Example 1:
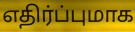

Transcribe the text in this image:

எதிர்ப்புமாக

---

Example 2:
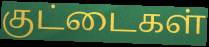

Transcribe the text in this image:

குட்டைகள்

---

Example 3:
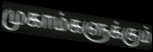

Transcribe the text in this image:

முகாம்களுக்கும்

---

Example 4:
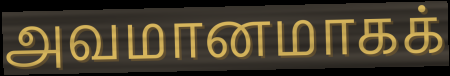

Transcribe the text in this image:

அவமானமாகக்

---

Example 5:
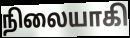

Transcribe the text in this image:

நிலையாகி